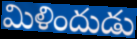
మిళిందుడు